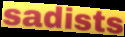
sadists